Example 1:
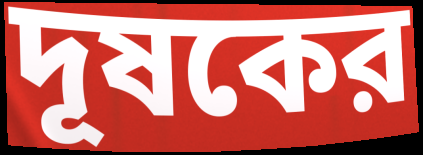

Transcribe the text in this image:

দূষকের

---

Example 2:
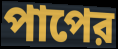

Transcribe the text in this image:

পাপের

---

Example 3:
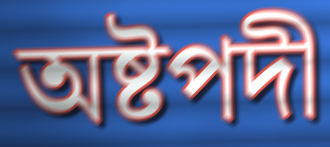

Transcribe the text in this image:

অষ্টপদী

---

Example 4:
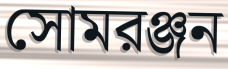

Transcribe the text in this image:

সোমরঞ্জন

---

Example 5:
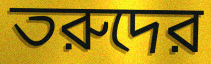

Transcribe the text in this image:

তরুদের